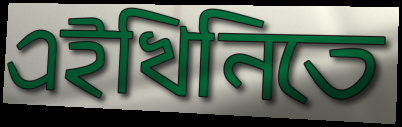
এইখিনিতে